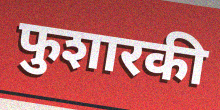
फुशारकी